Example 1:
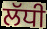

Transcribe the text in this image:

ਲੱਧੀ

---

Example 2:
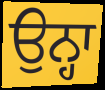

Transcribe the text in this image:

ਉਨ੍ਹਾ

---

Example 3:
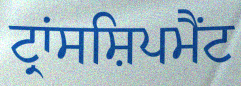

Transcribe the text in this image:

ਟ੍ਰਾਂਸਸ਼ਿਪਮੈਂਟ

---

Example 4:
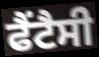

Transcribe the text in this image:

ਫੈਂਟੈਸੀ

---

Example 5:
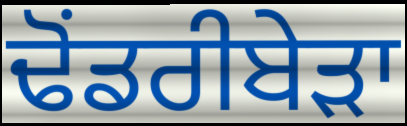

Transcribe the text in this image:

ਢੋਂਡਰੀਬੇੜਾ